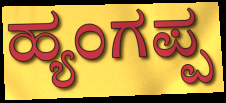
ಹ್ಯಂಗಪ್ಪ